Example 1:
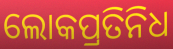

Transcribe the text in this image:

ଲୋକପ୍ରତିନିଧ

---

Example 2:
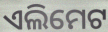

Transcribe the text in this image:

ଏଲିମେଟ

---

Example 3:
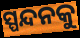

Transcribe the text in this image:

ସ୍ପନ୍ଦନକୁ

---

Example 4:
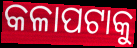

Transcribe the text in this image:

କଳାପଟାକୁ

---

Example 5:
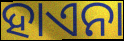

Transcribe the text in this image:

ହାଏନା